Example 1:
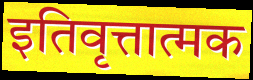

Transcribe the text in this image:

इतिवृत्तात्मक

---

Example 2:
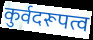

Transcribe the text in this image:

कुर्वदरूपत्व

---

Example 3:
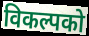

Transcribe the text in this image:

विकल्पको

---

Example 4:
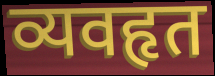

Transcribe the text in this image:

व्यवहृत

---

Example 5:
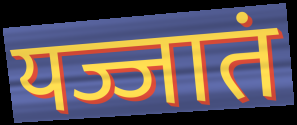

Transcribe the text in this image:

यज्जातं